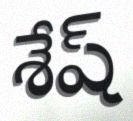
శేష్